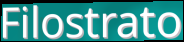
Filostrato